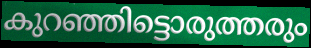
കുറഞ്ഞിട്ടൊരുത്തരും